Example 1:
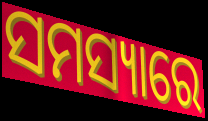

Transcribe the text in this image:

ସମସ୍ୟାରେ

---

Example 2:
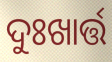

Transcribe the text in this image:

ଦୁଃଖାର୍ତ୍ତ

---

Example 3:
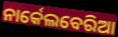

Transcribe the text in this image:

ନାର୍କେଲବେରିଆ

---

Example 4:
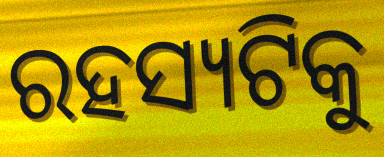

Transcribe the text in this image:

ରହସ୍ୟଟିକୁ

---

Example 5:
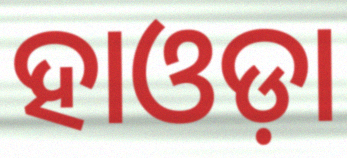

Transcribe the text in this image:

ହାଓଡ଼ା